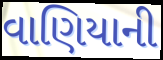
વાણિયાની